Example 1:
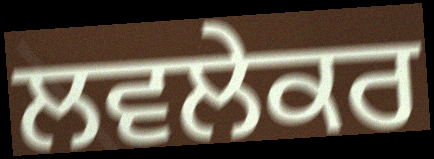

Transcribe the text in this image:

ਲਵਲੇਕਰ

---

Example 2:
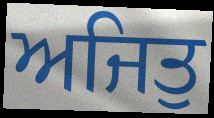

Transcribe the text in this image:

ਅਜਿਤੁ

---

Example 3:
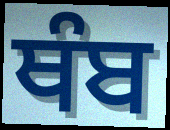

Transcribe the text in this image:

ਥੰਬ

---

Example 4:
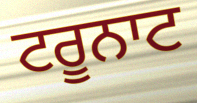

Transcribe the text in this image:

ਟਰੂਨਾਟ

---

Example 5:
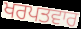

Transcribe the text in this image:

ਖਰਪਤਵਾਰ